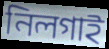
নিলগাই